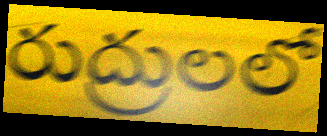
రుద్రులలో